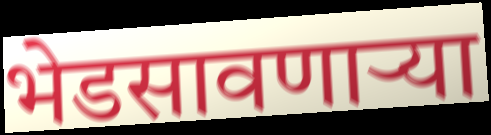
भेडसावणाऱ्या